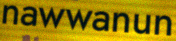
nawwanun